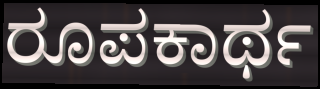
ರೂಪಕಾರ್ಥ